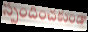
స్పందించకుండా